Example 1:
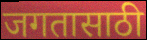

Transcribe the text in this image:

जगतासाठी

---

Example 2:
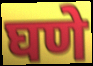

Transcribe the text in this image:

घणे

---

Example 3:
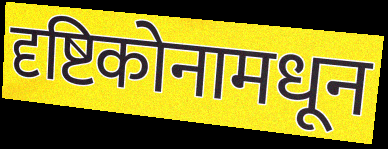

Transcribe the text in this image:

दृष्टिकोनामधून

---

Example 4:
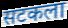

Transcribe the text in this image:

सटकला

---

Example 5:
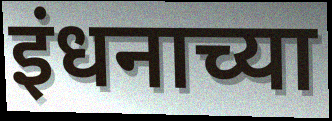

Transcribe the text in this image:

इंधनाच्या